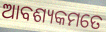
ଆବଶ୍ୟକମତେ